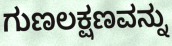
ಗುಣಲಕ್ಷಣವನ್ನು